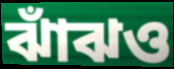
ঝাঁঝও